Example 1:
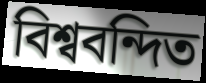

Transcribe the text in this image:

বিশ্ববন্দিত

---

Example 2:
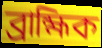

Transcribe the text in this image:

ব্ৰাহ্মিক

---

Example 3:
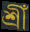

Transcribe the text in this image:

শ্ৰীঁ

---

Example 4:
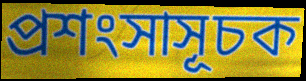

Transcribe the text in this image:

প্ৰশংসাসূচক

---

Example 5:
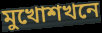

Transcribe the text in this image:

মুখোশখনে